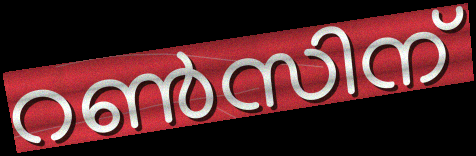
റൺസിന്